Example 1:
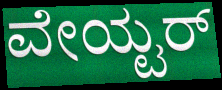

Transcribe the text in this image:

ವೇಯ್ಟರ್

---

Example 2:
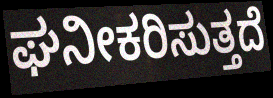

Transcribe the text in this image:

ಘನೀಕರಿಸುತ್ತದೆ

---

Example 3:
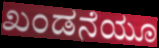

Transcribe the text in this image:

ಖಂಡನೆಯೂ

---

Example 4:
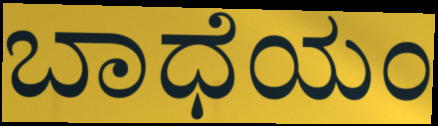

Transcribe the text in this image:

ಬಾಧೆಯಂ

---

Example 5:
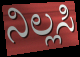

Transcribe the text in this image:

ನಿಲ್ಲಸಿ